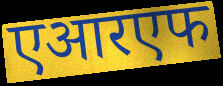
एआरएफ